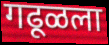
गढूळला